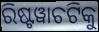
ରିଷ୍ଟୱାଚଟିକୁ